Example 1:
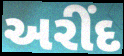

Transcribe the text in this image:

અરીંદ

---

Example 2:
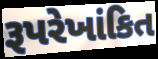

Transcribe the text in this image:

રૂપરેખાંકિત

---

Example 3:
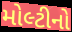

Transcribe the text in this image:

મોલ્ટીનો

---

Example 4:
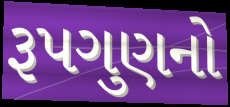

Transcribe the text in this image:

રૂપગુણનો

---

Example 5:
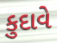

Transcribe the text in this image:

કુદાવે